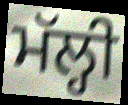
ਮੱਲ੍ਹੀ